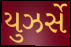
યુઝર્સે